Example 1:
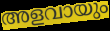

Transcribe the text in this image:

അളവായും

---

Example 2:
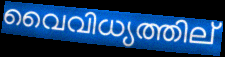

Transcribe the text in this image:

വൈവിധ്യത്തില്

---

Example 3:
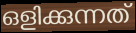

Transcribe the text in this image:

ഒളിക്കുന്നത്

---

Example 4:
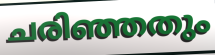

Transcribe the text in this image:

ചരിഞ്ഞതും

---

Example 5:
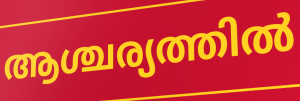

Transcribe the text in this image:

ആശ്ചര്യത്തിൽ